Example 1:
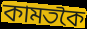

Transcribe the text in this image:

কামতকৈ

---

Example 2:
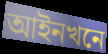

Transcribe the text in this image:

আইনখনে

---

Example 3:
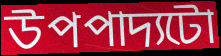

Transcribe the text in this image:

উপপাদ্যটো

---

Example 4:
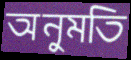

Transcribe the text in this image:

অনুমতি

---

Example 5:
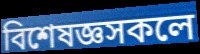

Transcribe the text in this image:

বিশেষজ্ঞসকলে